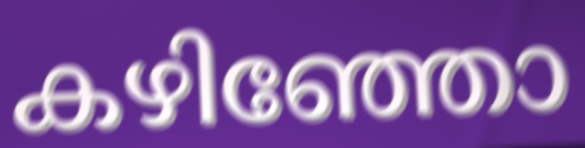
കഴിഞ്ഞോ